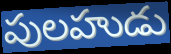
పులహుడు